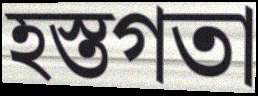
হস্তগতা